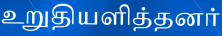
உறுதியளித்தனர்